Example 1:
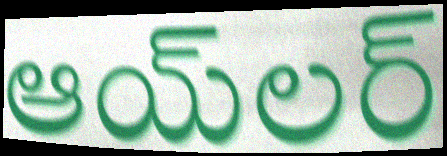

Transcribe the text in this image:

ఆయ్‌లర్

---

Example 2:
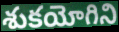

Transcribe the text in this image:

శుకయోగిని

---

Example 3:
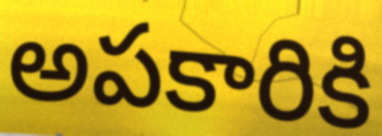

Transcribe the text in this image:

అపకారికి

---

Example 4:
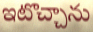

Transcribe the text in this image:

ఇటొచ్చాను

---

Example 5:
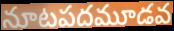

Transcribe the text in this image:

నూటపదమూడవ